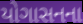
યોગાસનના